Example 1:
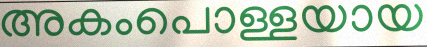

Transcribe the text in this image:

അകംപൊള്ളയായ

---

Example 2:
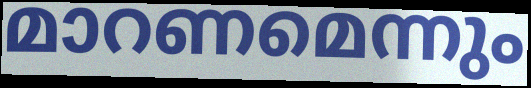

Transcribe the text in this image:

മാറണമെന്നും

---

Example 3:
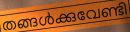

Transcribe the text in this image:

തങ്ങൾക്കുവേണ്ടി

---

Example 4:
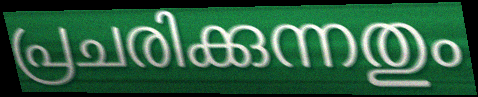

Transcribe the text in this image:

പ്രചരിക്കുന്നതും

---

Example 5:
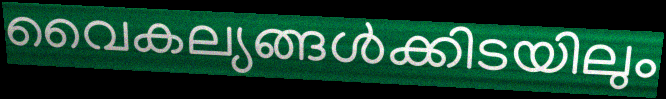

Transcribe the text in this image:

വൈകല്യങ്ങൾക്കിടയിലും